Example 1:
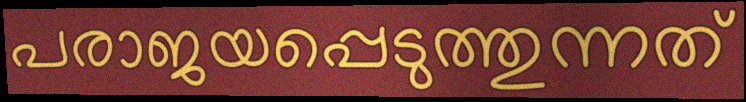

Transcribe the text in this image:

പരാജയപ്പെടുത്തുന്നത്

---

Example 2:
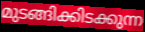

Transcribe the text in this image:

മുടങ്ങിക്കിടക്കുന്ന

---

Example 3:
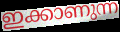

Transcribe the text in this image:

ഇക്കാണുന്ന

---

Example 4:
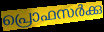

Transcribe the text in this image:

പ്രൊഫസർക്കു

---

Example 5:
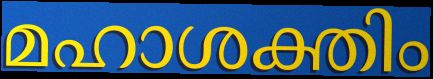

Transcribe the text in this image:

മഹാശക്തിം